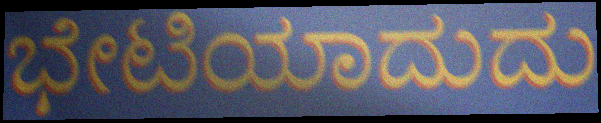
ಭೇಟಿಯಾದುದು